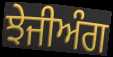
ਝੇਜੀਅੰਗ